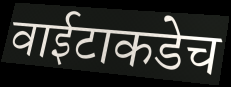
वाईटाकडेच